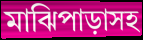
মাঝিপাড়াসহ